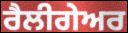
ਰੈਲੀਗੇਅਰ